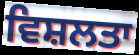
ਵਿਸ਼ਲਤਾ